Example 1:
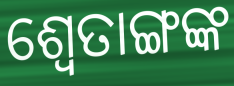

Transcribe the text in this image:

ଶ୍ବେତାଙ୍ଗଙ୍କ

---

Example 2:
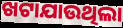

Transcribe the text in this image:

ଖଟାଯାଉଥିଲା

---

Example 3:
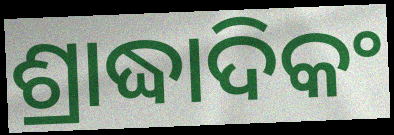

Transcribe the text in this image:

ଶ୍ରାଦ୍ଧାଦିକଂ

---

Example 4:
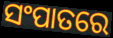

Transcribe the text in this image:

ସଂପାତରେ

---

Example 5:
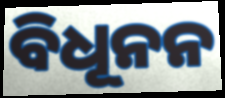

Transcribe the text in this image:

ବିଧୂନନ